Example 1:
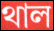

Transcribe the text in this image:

থাল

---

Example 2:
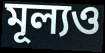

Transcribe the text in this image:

মূল্যও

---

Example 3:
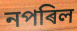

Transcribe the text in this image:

নপৰিল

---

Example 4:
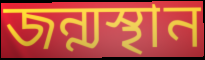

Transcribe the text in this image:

জন্মস্থান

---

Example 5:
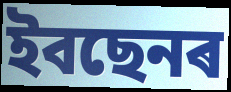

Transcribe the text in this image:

ইবছেনৰ